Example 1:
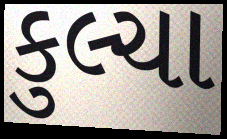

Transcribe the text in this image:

કુલ્ચા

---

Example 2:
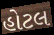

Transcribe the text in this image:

હોટલ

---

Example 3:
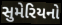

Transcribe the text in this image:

સુમેરિયનો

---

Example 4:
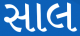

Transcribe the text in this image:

સાલ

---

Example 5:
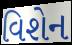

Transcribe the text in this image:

વિશેન